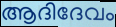
ആദിദേവം